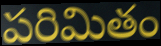
పరిమితం